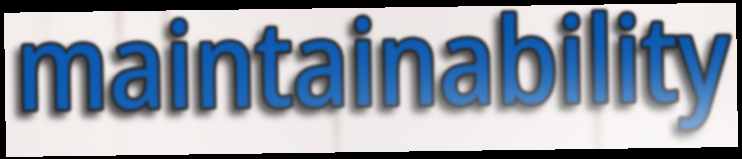
maintainability